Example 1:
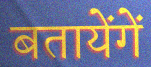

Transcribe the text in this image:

बतायेंगें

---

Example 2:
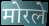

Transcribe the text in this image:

मोरले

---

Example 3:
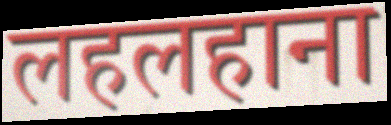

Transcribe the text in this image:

लहलहाना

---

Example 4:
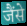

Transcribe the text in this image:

जैंसे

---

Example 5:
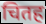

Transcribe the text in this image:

चितह